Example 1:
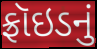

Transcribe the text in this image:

ફ્રૉઇડનું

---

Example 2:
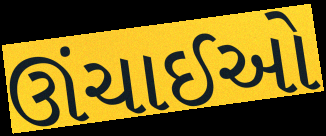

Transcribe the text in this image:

ઊંચાઈઓ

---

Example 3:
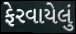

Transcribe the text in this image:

ફેરવાયેલું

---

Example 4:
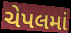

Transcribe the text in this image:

ચેપલમાં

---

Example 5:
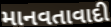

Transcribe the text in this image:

માનવતાવાદી